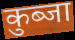
कुब्जा